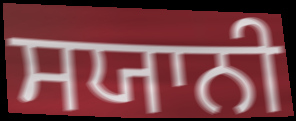
ਸਯਾਨੀ